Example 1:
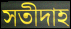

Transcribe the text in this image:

সতীদাহ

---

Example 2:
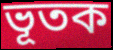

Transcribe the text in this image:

ভূতক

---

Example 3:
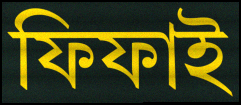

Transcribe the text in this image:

ফিফাই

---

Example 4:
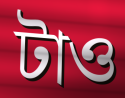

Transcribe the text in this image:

টাও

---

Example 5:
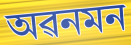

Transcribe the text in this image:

অৱনমন